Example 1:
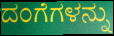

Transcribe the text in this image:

ದಂಗೆಗಳನ್ನು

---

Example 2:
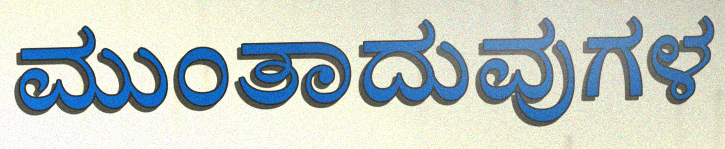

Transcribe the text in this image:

ಮುಂತಾದುವುಗಳ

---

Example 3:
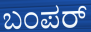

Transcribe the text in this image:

ಬಂಪರ್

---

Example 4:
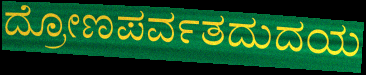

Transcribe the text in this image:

ದ್ರೋಣಪರ್ವತದುದಯ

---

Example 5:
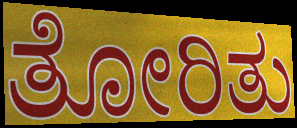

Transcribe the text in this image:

ತೋರಿತು